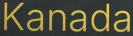
Kanada